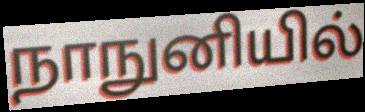
நாநுனியில்